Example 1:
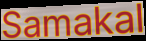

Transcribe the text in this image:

Samakal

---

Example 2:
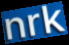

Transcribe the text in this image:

nrk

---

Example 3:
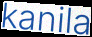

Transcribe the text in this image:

kanila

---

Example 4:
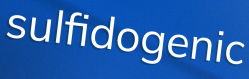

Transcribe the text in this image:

sulfidogenic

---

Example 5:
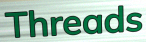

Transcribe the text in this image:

Threads